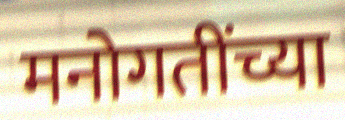
मनोगतींच्या